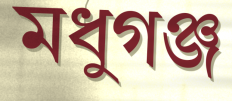
মধুগঞ্জ